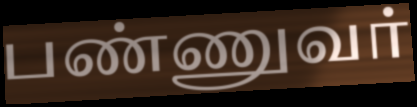
பண்ணுவர்